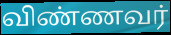
விண்ணவர்